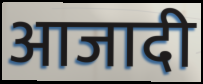
आजादी